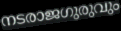
നടരാജഗുരുവും